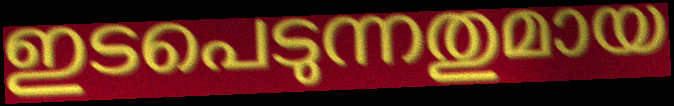
ഇടപെടുന്നതുമായ